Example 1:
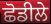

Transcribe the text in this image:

ਛੋਡੀਲੇ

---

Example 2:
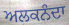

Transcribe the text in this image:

ਅਲਕਨੰਦਾ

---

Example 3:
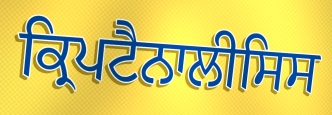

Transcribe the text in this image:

ਕ੍ਰਿਪਟੈਨਾਲੀਸਿਸ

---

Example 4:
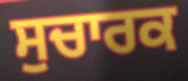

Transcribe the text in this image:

ਸੁਚਾਰਕ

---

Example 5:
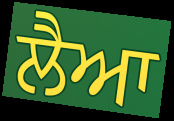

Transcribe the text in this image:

ਲੈਆ